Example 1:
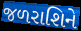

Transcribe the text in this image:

જળરાશિને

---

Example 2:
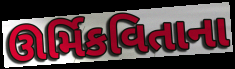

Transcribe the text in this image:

ઊર્મિકવિતાના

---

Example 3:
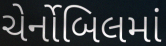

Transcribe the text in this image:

ચેર્નોબિલમાં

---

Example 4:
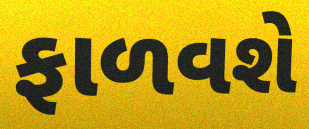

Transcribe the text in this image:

ફાળવશે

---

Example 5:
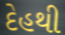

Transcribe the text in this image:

દેહથી